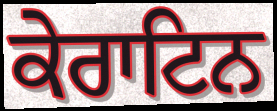
ਕੇਰਾਟਿਨ